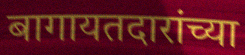
बागायतदारांच्या